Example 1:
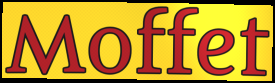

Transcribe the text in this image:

Moffet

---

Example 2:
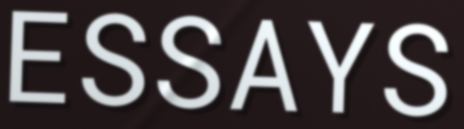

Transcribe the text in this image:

ESSAYS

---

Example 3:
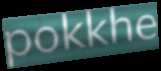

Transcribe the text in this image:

pokkhe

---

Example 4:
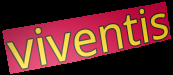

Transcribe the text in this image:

viventis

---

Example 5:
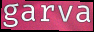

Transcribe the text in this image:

garva